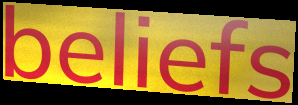
beliefs